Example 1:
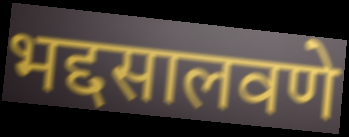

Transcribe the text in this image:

भद्दसालवणे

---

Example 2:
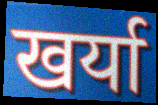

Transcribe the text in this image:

खर्या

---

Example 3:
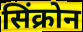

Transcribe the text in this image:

सिंक्रोन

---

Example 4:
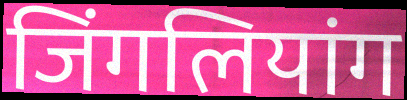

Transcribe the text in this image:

जिंगलियांग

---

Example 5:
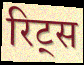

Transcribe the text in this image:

रिट्स